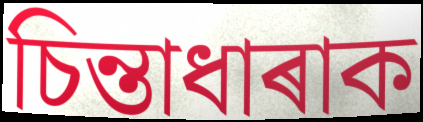
চিন্তাধাৰাক